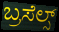
ಬ್ರಸೆಲ್ಸ್